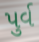
પુર્વ